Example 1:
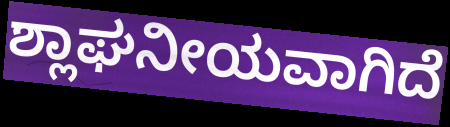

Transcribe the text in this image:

ಶ್ಲಾಘನೀಯವಾಗಿದೆ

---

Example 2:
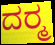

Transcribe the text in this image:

ದರ‍್ಮ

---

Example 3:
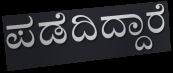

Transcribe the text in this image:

ಪಡೆದಿದ್ದಾರೆ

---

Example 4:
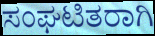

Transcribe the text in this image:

ಸಂಘಟಿತರಾಗಿ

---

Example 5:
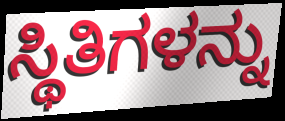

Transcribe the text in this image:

ಸ್ಥಿತಿಗಳನ್ನು